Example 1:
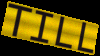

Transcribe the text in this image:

TILL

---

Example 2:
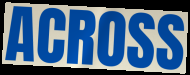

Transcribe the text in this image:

ACROSS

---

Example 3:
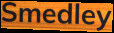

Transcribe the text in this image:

Smedley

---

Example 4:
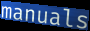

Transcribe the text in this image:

manuals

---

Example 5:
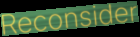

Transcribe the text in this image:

Reconsider